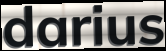
darius